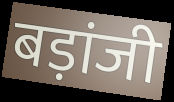
बड़ांजी